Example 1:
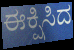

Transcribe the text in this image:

ಈಕ್ಷಿಸಿದ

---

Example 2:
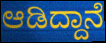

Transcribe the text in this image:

ಆಡಿದ್ದಾನೆ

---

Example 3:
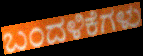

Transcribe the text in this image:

ಬಂದಳಿಕೆಗಳು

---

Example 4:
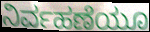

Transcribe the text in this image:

ನಿರ್ವಹಣೆಯೂ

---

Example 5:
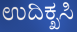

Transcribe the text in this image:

ಉದಿಕ್ಖಸಿ